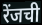
रेंजची